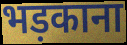
भड़काना